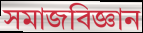
সমাজবিজ্ঞান